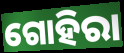
ଗୋହିରା